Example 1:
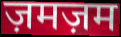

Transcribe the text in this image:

ज़मज़म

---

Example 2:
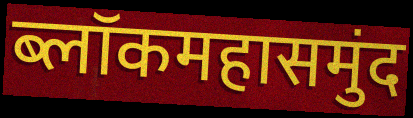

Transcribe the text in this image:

ब्लॉकमहासमुंद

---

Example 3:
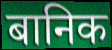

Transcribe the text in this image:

बानिक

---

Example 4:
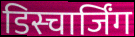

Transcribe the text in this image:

डिस्चार्जिंग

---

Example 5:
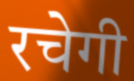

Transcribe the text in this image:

रचेगी